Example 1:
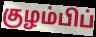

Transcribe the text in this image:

குழம்பிப்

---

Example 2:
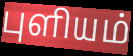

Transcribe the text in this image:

புளியம்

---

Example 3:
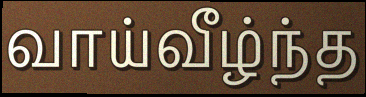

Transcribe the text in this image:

வாய்வீழ்ந்த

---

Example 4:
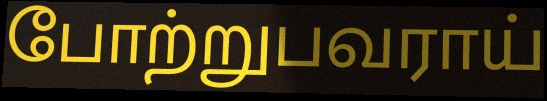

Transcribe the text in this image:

போற்றுபவராய்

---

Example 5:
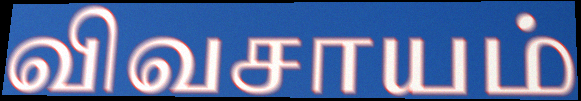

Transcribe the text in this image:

விவசாயம்